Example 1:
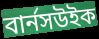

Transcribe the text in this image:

বার্নসউইক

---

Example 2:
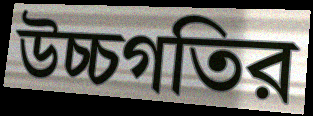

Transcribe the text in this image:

উচ্চগতির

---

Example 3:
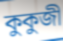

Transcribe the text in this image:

কুকুজী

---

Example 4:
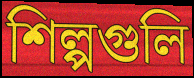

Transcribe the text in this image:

শিল্পগুলি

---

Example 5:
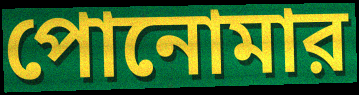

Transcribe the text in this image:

পোনোমার